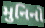
મુનિનો